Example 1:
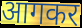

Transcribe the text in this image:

आगकर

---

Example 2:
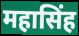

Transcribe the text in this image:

महासिंह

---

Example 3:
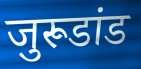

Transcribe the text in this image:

जुरूडांड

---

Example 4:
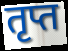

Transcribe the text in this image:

तृप्त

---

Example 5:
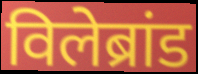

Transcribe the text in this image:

विलेब्रांड